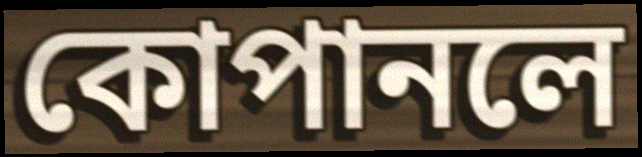
কোপানলে